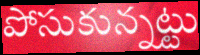
పోసుకున్నట్టు